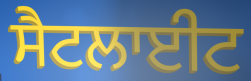
ਸੈਟਲਾਈਟ